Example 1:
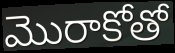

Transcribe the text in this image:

మొరాకోతో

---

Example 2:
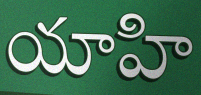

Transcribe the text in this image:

యాహి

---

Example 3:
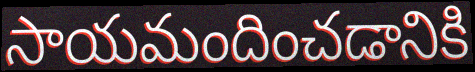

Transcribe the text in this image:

సాయమందించడానికి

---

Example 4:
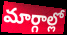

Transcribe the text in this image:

మార్గాల్లో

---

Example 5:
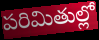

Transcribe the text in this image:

పరిమితుల్లో